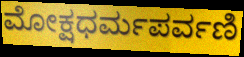
ಮೋಕ್ಷಧರ್ಮಪರ್ವಣಿ